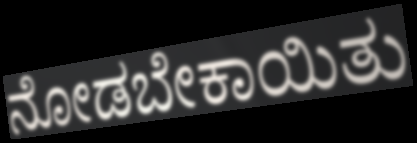
ನೋಡಬೇಕಾಯಿತು